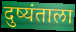
दुष्यंताला